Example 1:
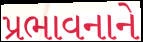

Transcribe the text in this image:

પ્રભાવનાને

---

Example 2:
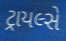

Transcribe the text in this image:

ટ્રાયલ્સે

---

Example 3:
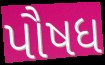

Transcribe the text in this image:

પૌષધ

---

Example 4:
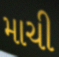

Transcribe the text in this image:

માચી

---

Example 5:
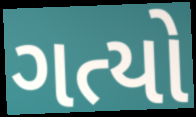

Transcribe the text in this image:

ગત્યો